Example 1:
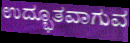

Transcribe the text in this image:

ಉದ್ಭೂತವಾಗುವ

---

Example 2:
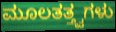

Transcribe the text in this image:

ಮೂಲತತ್ತ್ವಗಳು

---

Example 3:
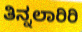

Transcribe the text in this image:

ತಿನ್ನಲಾರಿರಿ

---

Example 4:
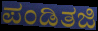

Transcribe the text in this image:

ಪಂಡಿತಜಿ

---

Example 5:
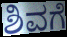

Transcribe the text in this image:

ಶಿವಗೆ